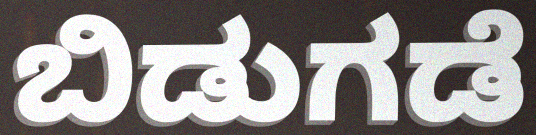
ಬಿಡುಗಡೆ